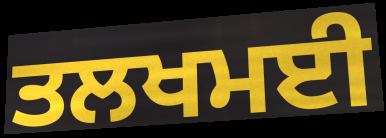
ਤਲਖਮਈ